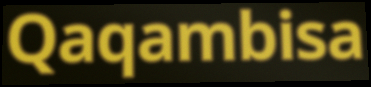
Qaqambisa